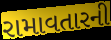
રામાવતારની